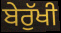
ਬੇਰੁੱਖੀ